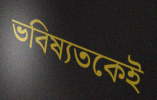
ভবিষ্যতকেই